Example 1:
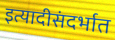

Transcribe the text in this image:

इत्यादीसंदर्भात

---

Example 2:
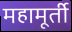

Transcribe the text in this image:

महामूर्ती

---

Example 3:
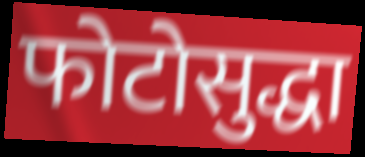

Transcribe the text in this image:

फोटोसुद्धा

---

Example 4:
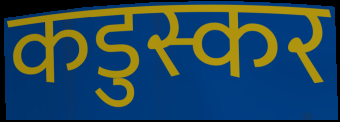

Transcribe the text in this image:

कडुस्कर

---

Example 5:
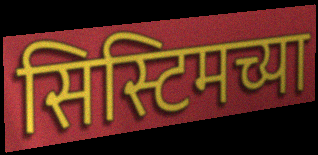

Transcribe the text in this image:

सिस्टिमच्या